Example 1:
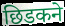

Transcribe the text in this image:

छिडकने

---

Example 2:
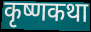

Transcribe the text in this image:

कृष्णकथा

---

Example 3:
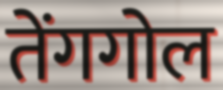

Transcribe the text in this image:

तेंगगोल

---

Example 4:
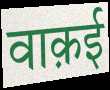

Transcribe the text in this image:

वाक़ई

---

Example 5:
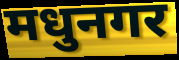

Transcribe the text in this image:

मधुनगर